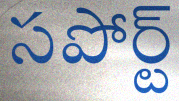
సపోర్ట్